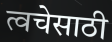
त्वचेसाठी